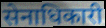
सेनाधिकारी